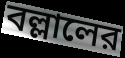
বল্লালের